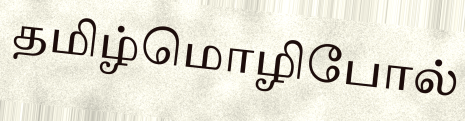
தமிழ்மொழிபோல்